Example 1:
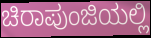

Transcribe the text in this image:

ಚಿರಾಪುಂಜಿಯಲ್ಲಿ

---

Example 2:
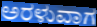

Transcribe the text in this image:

ಅರಳುವಾಗ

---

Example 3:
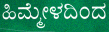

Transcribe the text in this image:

ಹಿಮ್ಮೇಳದಿಂದ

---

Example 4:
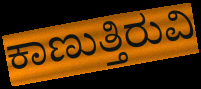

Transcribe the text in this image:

ಕಾಣುತ್ತಿರುವಿ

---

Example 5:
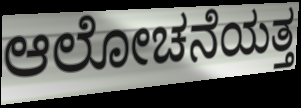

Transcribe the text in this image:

ಆಲೋಚನೆಯತ್ತ